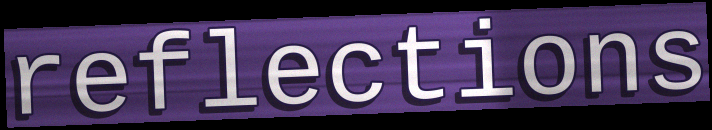
reflections